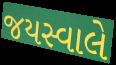
જયસ્વાલે